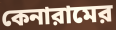
কেনারামের